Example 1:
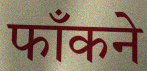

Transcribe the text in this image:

फाँकने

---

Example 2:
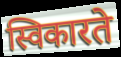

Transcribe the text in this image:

स्विकारते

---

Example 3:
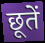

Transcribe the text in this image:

छूतें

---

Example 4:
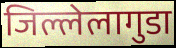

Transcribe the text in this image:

जिल्लेलागुडा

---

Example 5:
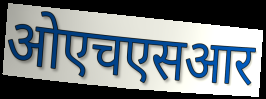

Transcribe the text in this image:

ओएचएसआर